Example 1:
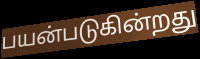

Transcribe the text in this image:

பயன்படுகின்றது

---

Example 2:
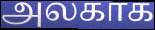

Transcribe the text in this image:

அலகாக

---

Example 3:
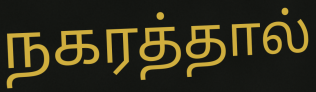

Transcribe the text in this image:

நகரத்தால்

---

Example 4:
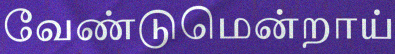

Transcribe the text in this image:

வேண்டுமென்றாய்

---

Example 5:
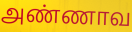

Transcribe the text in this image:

அண்ணாவ